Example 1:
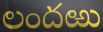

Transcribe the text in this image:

లందఱు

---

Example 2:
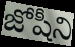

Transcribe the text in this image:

జోషీని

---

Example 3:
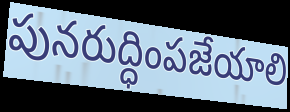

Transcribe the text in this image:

పునరుద్ధింపజేయాలి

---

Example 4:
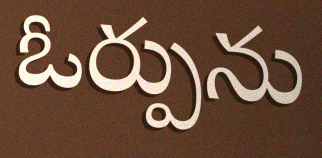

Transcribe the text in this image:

ఓర్పును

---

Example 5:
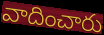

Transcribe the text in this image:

వాదించారు